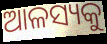
ଆଳସ୍ୟକୁ